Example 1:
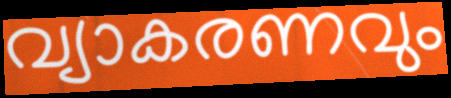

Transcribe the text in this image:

വ്യാകരണവും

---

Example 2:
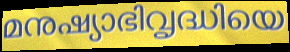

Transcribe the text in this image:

മനുഷ്യാഭിവൃദ്ധിയെ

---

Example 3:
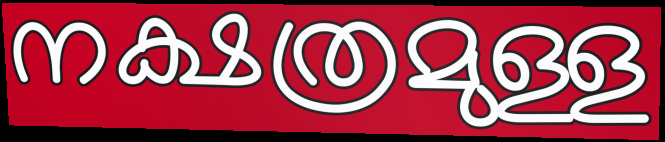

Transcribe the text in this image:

നക്ഷത്രമുള്ള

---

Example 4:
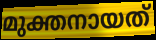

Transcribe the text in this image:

മുക്തനായത്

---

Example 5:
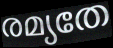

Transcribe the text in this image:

രമ്യതേ